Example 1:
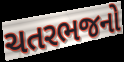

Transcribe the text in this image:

ચતરભજનો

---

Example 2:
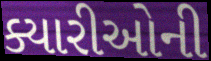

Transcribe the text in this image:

ક્યારીઓની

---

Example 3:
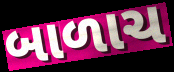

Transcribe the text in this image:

બાળાચ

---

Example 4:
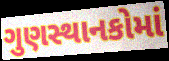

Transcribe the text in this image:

ગુણસ્થાનકોમાં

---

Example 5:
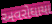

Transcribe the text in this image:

અવરોધાયા